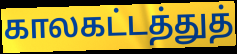
காலகட்டத்துத்